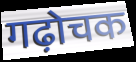
गढ़ोचक